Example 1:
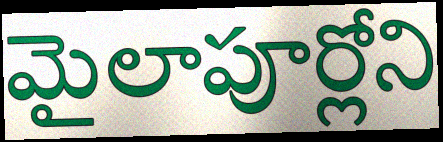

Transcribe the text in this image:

మైలాపూర్లోని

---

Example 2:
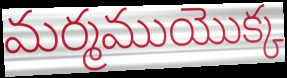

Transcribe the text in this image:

మర్మముయొక్క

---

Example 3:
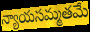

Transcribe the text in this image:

న్యాయసమ్మతమే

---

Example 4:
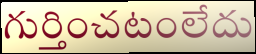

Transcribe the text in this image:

గుర్తించటంలేదు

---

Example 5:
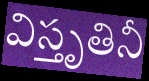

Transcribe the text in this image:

విస్తృతినీ